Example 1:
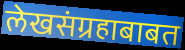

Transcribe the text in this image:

लेखसंग्रहाबाबत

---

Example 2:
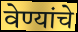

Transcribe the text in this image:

वेण्यांचे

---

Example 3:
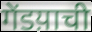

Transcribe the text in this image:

गेंडय़ाची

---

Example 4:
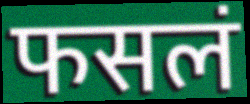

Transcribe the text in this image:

फसलं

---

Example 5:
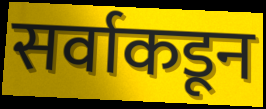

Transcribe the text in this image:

सर्वाकडून